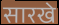
सारखे